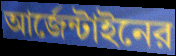
আর্জেন্টাইনের